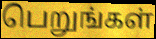
பெறுங்கள்